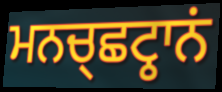
ਮਨਚ੍ਛਟ੍ਠਾਨਂ